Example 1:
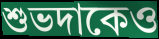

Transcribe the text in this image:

শুভদাকেও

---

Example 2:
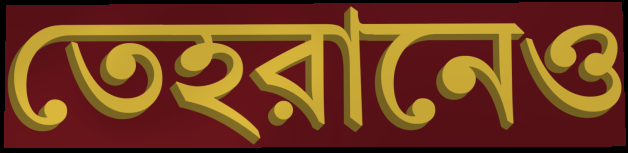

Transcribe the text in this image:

তেহরানেও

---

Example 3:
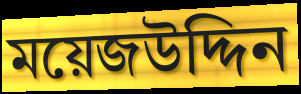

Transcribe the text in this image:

ময়েজউদ্দিন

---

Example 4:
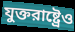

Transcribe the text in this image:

যুক্তরাষ্ট্রেও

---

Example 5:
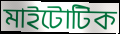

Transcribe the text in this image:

মাইটোটিক